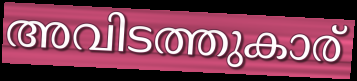
അവിടത്തുകാര്